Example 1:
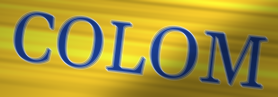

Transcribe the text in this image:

COLOM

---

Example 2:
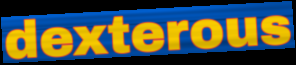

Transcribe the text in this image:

dexterous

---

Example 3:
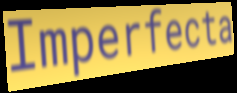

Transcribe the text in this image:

Imperfecta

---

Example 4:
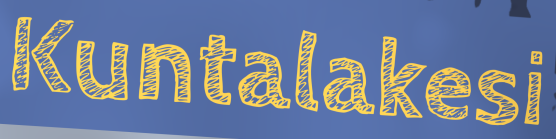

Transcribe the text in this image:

Kuntalakesi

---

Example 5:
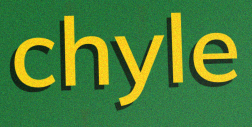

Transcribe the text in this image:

chyle